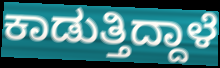
ಕಾಡುತ್ತಿದ್ದಾಳೆ